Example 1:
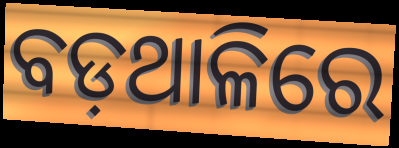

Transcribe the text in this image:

ବଡ଼ଥାଳିରେ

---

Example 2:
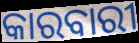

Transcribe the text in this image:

କାରବାରୀ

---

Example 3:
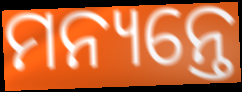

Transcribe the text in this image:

ମନ୍ୟନ୍ତେ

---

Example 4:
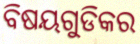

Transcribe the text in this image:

ବିଷୟଗୁଡିକର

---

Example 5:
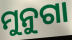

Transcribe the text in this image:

ମୁନୁଗା